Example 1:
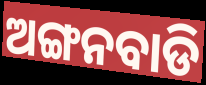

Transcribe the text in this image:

ଅଙ୍ଗନବାଡି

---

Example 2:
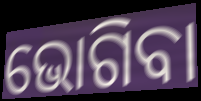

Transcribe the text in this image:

ଭୋଗିବା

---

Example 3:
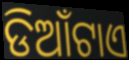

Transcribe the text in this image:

ଡିଆଁଟାଏ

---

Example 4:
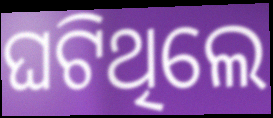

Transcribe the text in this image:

ଘଟିଥିଲେ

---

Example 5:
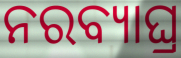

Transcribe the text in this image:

ନରବ୍ୟାଘ୍ର